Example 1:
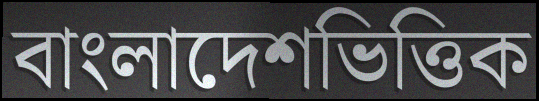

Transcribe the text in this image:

বাংলাদেশভিত্তিক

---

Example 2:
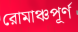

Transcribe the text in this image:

রোমাঞ্চপূর্ণ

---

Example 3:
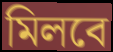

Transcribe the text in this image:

মিলবে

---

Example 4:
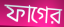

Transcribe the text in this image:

ফাগের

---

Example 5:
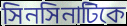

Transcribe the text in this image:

সিনসিনাটিকে